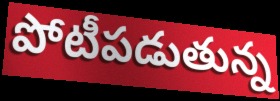
పోటీపడుతున్న